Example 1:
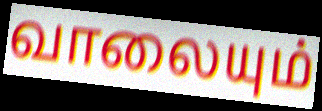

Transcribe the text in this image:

வாலையும்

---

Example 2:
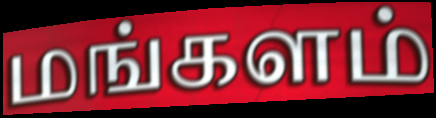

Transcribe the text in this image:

மங்களம்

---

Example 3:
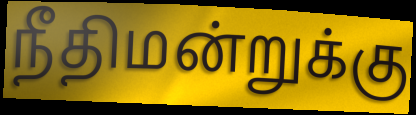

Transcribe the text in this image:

நீதிமன்றுக்கு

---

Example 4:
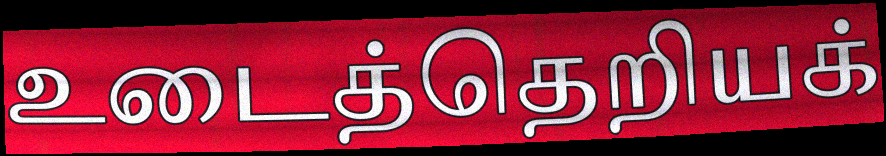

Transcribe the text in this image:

உடைத்தெறியக்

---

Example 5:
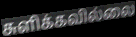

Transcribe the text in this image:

சுளிக்கவில்லை